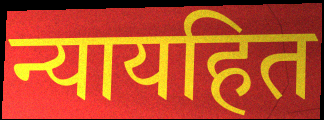
न्यायहित